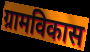
ग्रामविकास